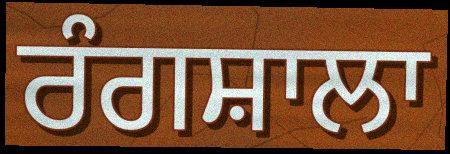
ਰੰਗਸ਼ਾਲਾ